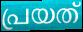
പ്രയത്